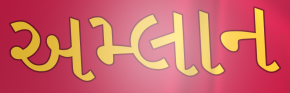
અમ્લાન